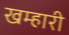
खम्हारी